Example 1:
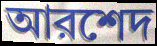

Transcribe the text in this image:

আরশেদ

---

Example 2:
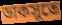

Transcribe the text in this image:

ডাকসুতে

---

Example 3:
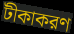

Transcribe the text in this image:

টীকাকরণ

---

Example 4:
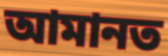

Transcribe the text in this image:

আমানত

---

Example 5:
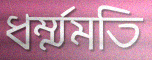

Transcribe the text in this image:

ধর্ম্মমতি